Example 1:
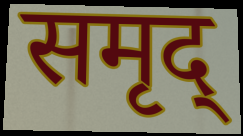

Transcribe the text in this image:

समृद्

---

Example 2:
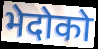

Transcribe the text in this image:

भेदोको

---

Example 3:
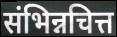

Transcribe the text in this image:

संभिन्नचित्त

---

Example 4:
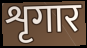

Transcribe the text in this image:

शृगार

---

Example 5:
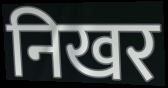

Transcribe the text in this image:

निखर